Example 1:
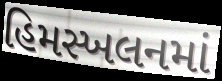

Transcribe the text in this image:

હિમસ્ખલનમાં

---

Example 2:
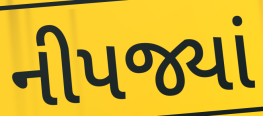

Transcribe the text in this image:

નીપજ્યાં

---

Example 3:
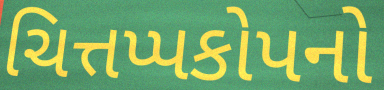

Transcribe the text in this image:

ચિત્તપ્પકોપનો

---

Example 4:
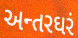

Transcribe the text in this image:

અન્તરઘરં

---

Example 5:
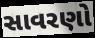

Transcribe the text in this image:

સાવરણો